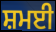
ਸ਼ਮਈ